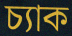
চ্যাক